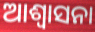
ଆଶ୍ୱାସନା